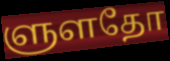
ளுளதோ